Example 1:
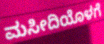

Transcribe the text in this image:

ಮಸೀದಿಯೊಳಗೆ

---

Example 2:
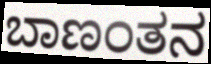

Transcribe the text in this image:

ಬಾಣಂತನ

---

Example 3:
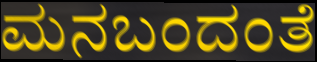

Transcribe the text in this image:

ಮನಬಂದಂತೆ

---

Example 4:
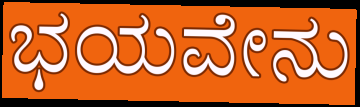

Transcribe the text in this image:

ಭಯವೇನು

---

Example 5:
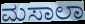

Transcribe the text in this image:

ಮಸಾಲಾ